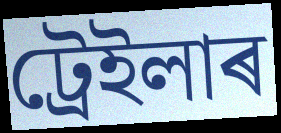
ট্ৰেইলাৰ